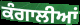
ਕੰਗਾਲੀਆਂ